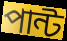
পান্ট